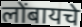
लोंबायचे